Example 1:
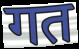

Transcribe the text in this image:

गत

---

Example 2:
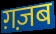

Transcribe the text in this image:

ग़ज़ब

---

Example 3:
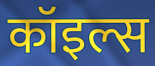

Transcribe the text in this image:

कॉइल्स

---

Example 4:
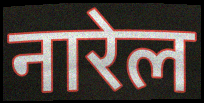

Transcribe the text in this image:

नारेल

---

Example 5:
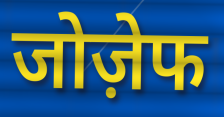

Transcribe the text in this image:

जोज़ेफ